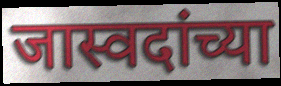
जास्वदांच्या